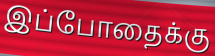
இப்போதைக்கு